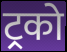
ट्रको